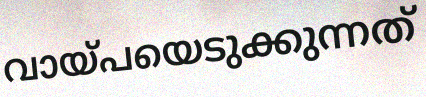
വായ്പയെടുക്കുന്നത്